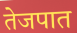
तेजपात